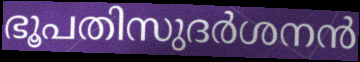
ഭൂപതിസുദർശനൻ